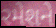
રમેશને